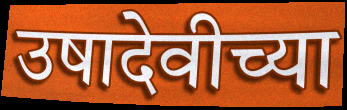
उषादेवीच्या